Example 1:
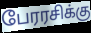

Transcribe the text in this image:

பேரரசிக்கு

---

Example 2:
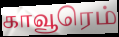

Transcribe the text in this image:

காவூரெம்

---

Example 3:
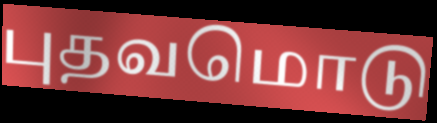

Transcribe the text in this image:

புதவமொடு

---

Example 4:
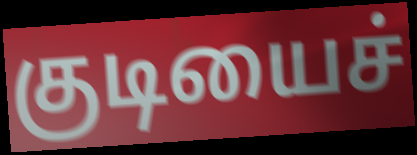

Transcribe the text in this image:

குடியைச்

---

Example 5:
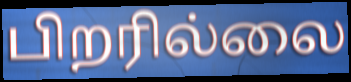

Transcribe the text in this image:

பிறரில்லை